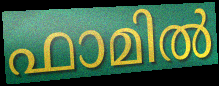
ഫാമിൽ